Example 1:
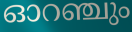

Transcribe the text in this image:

ഓറഞ്ചും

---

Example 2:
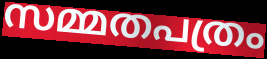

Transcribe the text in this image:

സമ്മതപത്രം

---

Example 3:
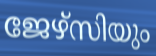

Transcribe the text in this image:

ജേഴ്സിയും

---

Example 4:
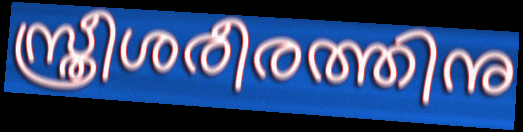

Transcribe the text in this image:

സ്ത്രീശരീരത്തിനു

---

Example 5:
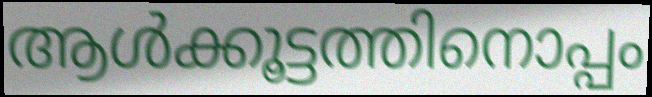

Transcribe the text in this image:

ആൾക്കൂട്ടത്തിനൊപ്പം